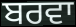
ਬਰਵਾ